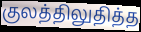
குலத்திலுதித்த